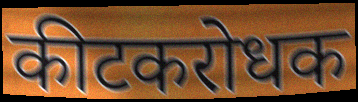
कीटकरोधक